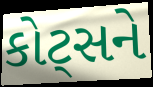
કોટ્સને